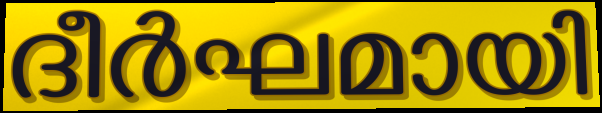
ദീർഘമായി